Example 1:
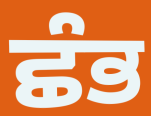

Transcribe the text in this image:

ਛੰਭ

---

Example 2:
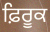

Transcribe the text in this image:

ਫ਼ਿਰੂਕ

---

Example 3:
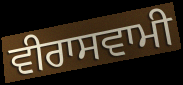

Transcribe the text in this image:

ਵੀਰਾਸਵਾਮੀ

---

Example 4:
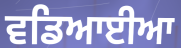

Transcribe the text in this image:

ਵਡਿਆਈਆ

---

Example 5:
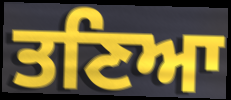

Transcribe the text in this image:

ਤਣਿਆ